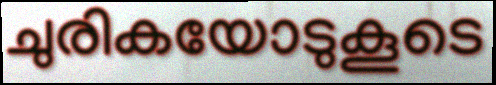
ചുരികയോടുകൂടെ